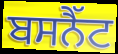
ਬਸਨੈੱਟ